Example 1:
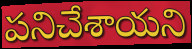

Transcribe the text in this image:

పనిచేశాయని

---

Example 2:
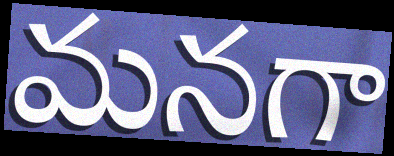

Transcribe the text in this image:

మనగా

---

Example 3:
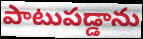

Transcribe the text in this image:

పాటుపడ్డాను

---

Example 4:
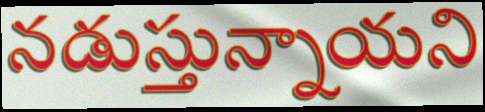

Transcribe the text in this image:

నడుస్తున్నాయని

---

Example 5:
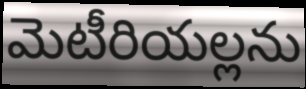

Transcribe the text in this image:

మెటీరియల్లను